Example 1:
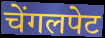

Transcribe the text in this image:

चेंगलपेट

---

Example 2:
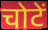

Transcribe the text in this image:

चोटें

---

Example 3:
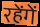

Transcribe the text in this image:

रहेंगें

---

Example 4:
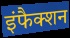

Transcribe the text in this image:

इंफैक्शन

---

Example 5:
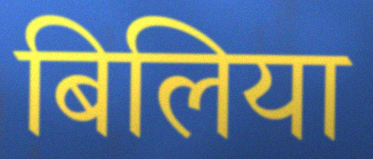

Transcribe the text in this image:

बिलिया